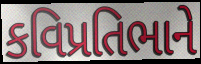
કવિપ્રતિભાને